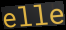
elle